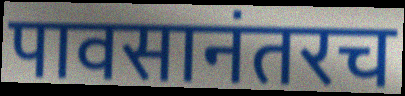
पावसानंतरच